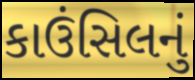
કાઉંસિલનું